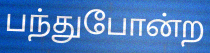
பந்துபோன்ற